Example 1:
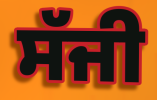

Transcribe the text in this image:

ਸੱਜੀ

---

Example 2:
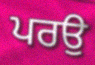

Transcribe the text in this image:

ਪਰਉ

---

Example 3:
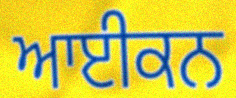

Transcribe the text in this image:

ਆਈਕਨ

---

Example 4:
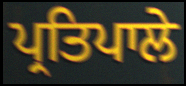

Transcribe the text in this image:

ਪ੍ਰਤਿਪਾਲੇ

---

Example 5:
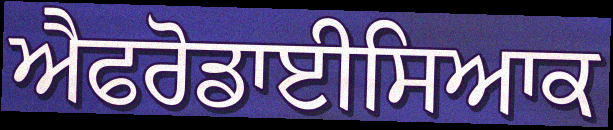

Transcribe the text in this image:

ਐਫਰੋਡਾਈਸਿਆਕ